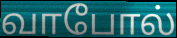
வாபோல்